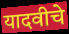
यादवीचे